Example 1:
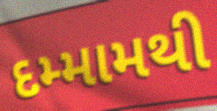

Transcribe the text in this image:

દમ્મામથી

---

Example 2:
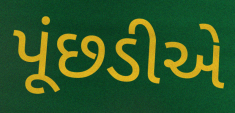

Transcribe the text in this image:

પૂંછડીએ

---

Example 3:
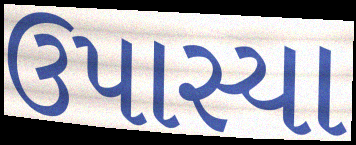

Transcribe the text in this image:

ઉપાસ્યા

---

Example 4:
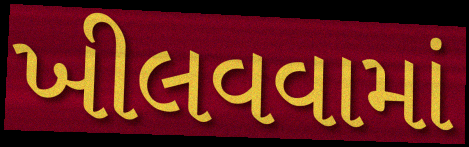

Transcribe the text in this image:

ખીલવવામાં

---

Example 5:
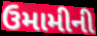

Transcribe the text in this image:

ઉમામીની